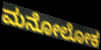
ಮನೋಲೋಕ